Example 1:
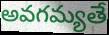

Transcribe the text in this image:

అవగమ్యతే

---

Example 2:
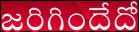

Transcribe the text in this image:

జరిగిందేదో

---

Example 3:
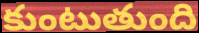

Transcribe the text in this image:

కుంటుతుంది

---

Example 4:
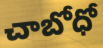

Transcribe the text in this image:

చాబోధో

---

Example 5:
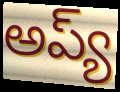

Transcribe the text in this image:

అప్య్